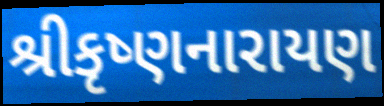
શ્રીકૃષ્ણનારાયણ